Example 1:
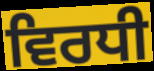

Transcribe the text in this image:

ਵਿਰਧੀ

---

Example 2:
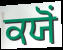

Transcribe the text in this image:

ਕਯੋਂ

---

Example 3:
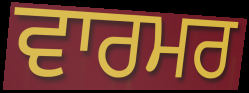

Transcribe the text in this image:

ਵਾਰਮਰ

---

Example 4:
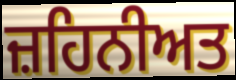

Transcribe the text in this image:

ਜ਼ਹਿਨੀਅਤ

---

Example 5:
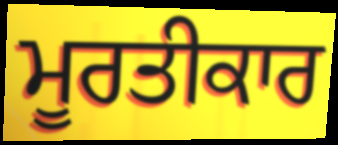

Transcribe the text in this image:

ਮੂਰਤੀਕਾਰ